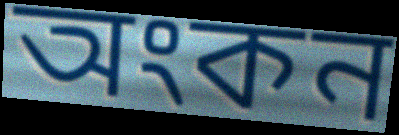
অংকন